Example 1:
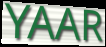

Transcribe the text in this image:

YAAR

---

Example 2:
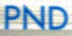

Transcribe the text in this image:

PND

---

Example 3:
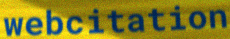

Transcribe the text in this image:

webcitation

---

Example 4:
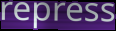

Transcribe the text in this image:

repress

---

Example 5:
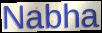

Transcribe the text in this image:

Nabha